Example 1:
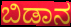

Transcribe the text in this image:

ಬಿಡಾನ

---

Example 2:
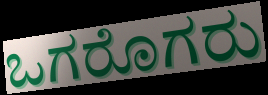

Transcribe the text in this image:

ಒಗರೊಗರು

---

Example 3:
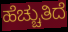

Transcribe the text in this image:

ಹೆಚ್ಚುತಿದೆ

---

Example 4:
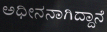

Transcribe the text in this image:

ಅಧೀನನಾಗಿದ್ದಾನೆ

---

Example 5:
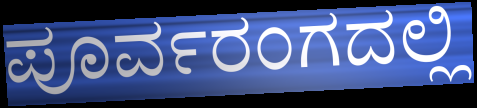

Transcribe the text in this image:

ಪೂರ್ವರಂಗದಲ್ಲಿ